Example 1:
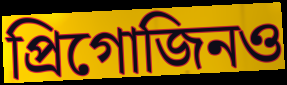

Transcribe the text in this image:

প্রিগোজিনও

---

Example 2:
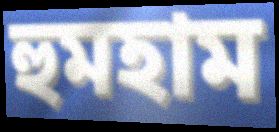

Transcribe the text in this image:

হুমহাম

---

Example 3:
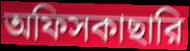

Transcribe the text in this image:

অফিসকাছারি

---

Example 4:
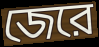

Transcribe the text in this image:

জেরে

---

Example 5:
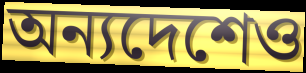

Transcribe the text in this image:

অন্যদেশেও